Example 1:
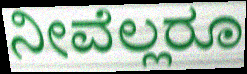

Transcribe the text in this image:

ನೀವೆಲ್ಲರೂ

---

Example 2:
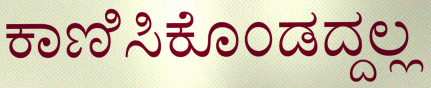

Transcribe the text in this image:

ಕಾಣಿಸಿಕೊಂಡದ್ದಲ್ಲ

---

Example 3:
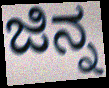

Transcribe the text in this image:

ಜಿನ್ನ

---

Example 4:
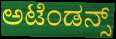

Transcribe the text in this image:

ಅಟೆಂಡನ್ಸ್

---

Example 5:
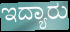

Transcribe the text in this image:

ಇದ್ಯಾರು